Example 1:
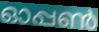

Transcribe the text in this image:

ഓപ്പൺ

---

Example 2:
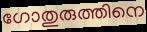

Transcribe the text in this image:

ഗോതുരുത്തിനെ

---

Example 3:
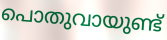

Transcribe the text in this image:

പൊതുവായുണ്ട്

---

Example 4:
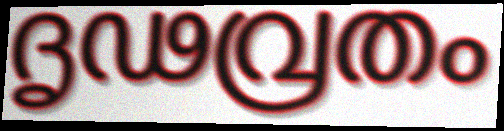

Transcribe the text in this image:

ദൃഢവ്രതം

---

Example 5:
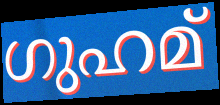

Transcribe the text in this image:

ഗുഹമ്